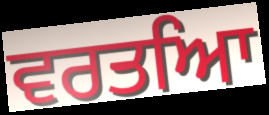
ਵਰਤਆਿ